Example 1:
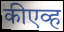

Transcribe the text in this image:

कीएव्ह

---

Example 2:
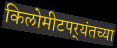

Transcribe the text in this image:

किलोमीटपर्यंतच्या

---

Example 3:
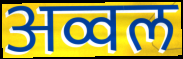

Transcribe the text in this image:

अव्वल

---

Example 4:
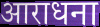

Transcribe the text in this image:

आराधना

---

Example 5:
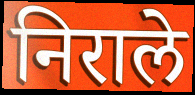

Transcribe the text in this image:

निराले